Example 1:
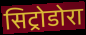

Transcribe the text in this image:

सिट्रोडोरा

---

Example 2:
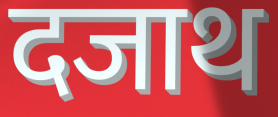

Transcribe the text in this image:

दजाथ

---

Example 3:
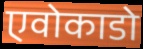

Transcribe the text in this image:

एवोकाडो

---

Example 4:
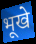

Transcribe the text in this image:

भूखे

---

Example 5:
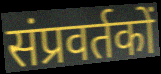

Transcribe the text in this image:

संप्रवर्तकों